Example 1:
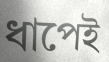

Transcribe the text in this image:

ধাপেই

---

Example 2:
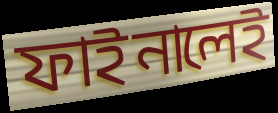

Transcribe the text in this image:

ফাইনালেই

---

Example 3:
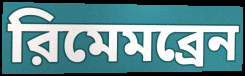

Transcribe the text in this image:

রিমেমব্রেন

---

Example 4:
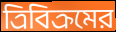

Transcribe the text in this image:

ত্রিবিক্রমের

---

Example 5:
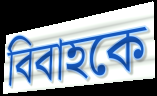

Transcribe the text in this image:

বিবাহকে